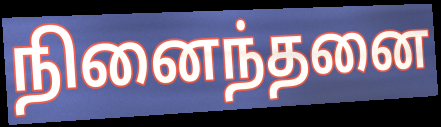
நினைந்தனை